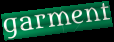
garment